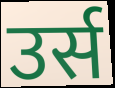
उर्स